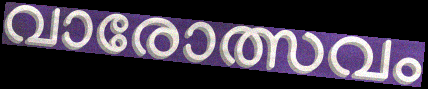
വാരോത്സവം